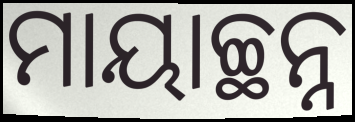
ମାୟାଚ୍ଛନ୍ନ